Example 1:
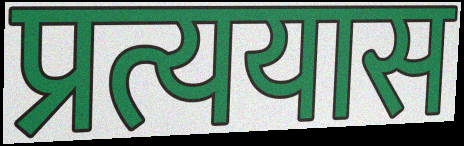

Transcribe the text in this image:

प्रत्ययास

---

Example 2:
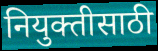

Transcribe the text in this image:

नियुक्तीसाठी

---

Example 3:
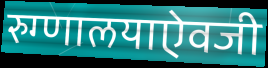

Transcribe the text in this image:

रुग्णालयाऐवजी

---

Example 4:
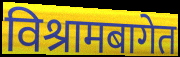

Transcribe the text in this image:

विश्रामबागेत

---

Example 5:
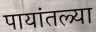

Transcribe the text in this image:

पायांतल्या